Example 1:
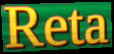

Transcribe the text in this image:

Reta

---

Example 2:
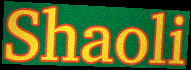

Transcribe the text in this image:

Shaoli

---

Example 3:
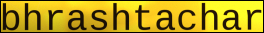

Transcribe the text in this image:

bhrashtachar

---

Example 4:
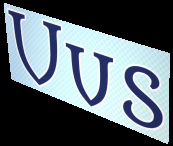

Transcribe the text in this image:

Uus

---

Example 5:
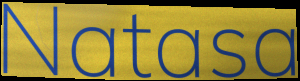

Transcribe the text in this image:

Natasa